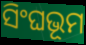
ସିଂଘଭୂମ